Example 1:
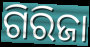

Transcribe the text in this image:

ଗିରିଜା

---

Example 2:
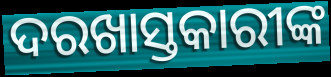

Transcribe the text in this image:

ଦରଖାସ୍ତକାରୀଙ୍କ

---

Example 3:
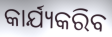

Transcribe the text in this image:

କାର୍ଯ୍ୟକରିବ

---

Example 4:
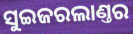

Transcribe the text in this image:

ସୁଇଜରଲାଣ୍ତର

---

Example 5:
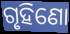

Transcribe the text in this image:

ଗୃହିଣୋ